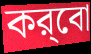
কর্‌বো